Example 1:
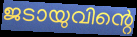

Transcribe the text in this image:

ജടായുവിന്റെ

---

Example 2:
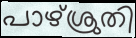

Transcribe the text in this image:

പാഴ്ശ്രുതി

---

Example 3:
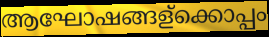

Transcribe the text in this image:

ആഘോഷങ്ങള്ക്കൊപ്പം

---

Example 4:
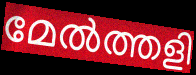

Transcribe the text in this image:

മേൽത്തളി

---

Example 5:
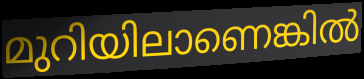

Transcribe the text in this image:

മുറിയിലാണെങ്കിൽ